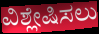
ವಿಶ್ಲೇಷಿಸಲು